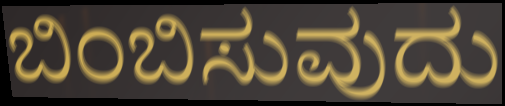
ಬಿಂಬಿಸುವುದು